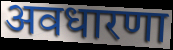
अवधारणा